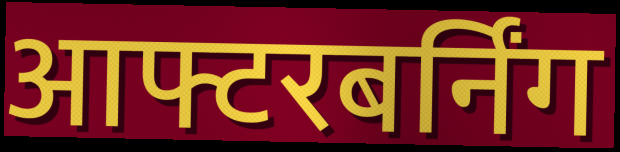
आफ्टरबर्निंग